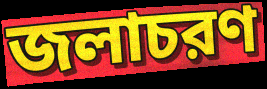
জলাচরণ